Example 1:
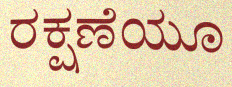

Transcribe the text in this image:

ರಕ್ಷಣೆಯೂ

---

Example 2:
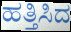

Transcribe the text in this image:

ಹತ್ತಿಸಿದ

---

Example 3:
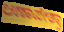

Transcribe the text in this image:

ಆಣಾಪೇತ್ವಾ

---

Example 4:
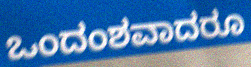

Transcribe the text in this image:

ಒಂದಂಶವಾದರೂ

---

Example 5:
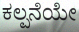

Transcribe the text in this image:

ಕಲ್ಪನೆಯೇ